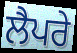
ਲੈਪਰੇ